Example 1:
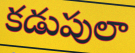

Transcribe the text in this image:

కడుపులా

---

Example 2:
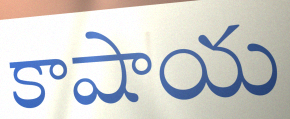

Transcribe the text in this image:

కాషాయ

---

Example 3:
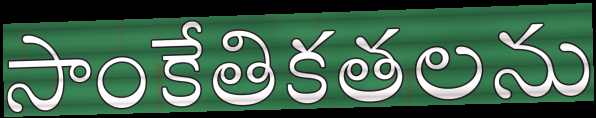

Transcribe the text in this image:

సాంకేతికతలను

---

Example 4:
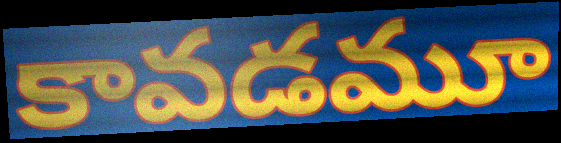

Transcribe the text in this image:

కావడమూ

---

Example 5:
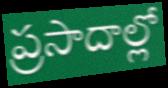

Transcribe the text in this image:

ప్రసాదాల్లో